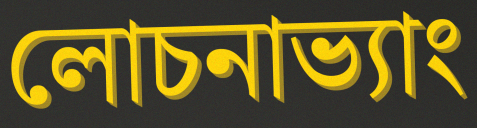
লোচনাভ্যাং